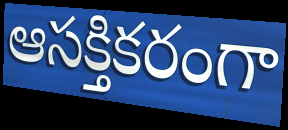
ఆసక్తికరంగా